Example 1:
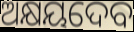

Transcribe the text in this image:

ଅକ୍ଷୟଦେବ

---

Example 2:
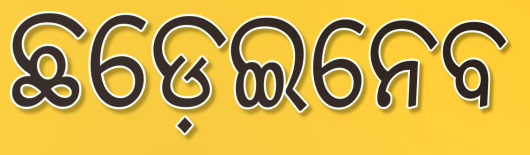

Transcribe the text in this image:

ଛଡ଼େଇନେବ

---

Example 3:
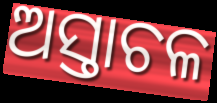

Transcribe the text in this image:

ଅସ୍ତାଚଳ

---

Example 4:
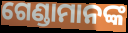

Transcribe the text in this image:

ଗେଣ୍ଡାମାନଙ୍କ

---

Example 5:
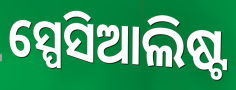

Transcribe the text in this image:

ସ୍ପେସିଆଲିଷ୍ଟ